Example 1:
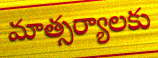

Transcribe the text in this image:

మాత్సర్యాలకు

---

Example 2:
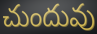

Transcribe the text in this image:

చుందువు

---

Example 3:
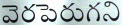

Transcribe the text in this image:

వెరపెరుగని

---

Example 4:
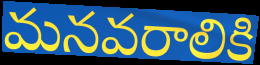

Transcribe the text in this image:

మనవరాలికి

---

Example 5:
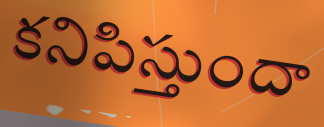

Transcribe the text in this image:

కనిపిస్తుందా